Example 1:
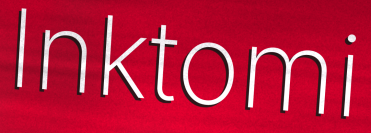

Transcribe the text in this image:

Inktomi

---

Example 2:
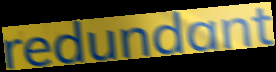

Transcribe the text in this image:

redundant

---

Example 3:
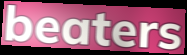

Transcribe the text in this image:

beaters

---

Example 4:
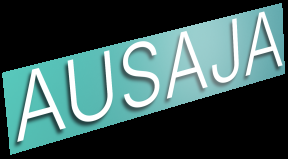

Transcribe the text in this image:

AUSAJA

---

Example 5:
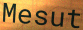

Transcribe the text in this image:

Mesut